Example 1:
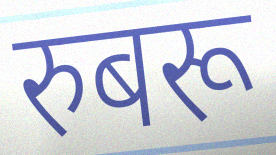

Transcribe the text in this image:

रुबरू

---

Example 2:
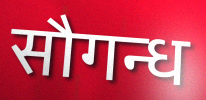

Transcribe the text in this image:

सौगन्ध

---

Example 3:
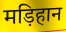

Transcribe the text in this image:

मड़िहान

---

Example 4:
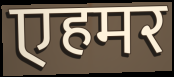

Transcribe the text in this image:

एहमर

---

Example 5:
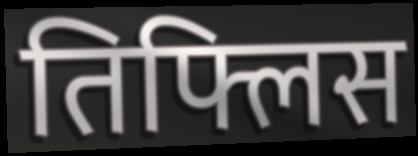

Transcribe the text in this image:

तिफ्लिस